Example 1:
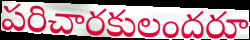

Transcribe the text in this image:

పరిచారకులందరూ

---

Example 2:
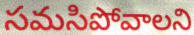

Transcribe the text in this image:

సమసిపోవాలని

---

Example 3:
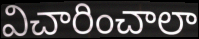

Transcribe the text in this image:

విచారించాలా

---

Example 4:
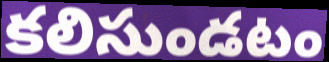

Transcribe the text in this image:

కలిసుండటం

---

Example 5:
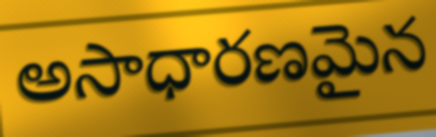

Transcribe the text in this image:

అసాధారణమైన